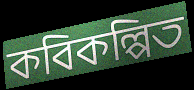
কবিকল্পিত